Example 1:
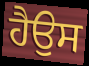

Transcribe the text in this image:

ਹੈਉਸ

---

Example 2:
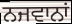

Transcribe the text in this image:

ਨਜਵਾਨਾਂ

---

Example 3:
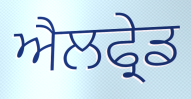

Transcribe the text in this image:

ਐਲਫ੍ਰੇਡ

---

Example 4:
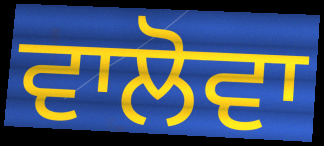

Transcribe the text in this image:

ਵਾਲੋਵਾ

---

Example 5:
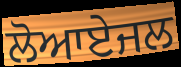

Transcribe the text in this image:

ਲੋਆਏਜਲ